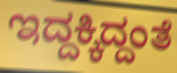
ಇದ್ದಕ್ಕಿದ್ದಂತೆ